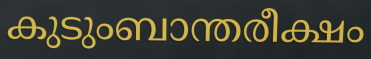
കുടുംബാന്തരീക്ഷം